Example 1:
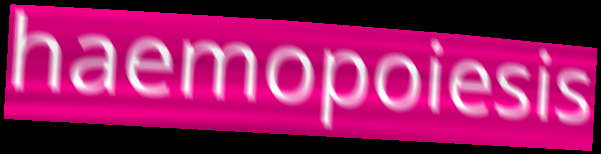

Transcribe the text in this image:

haemopoiesis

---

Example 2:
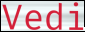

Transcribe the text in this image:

Vedi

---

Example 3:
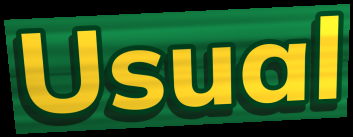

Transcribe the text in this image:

Usual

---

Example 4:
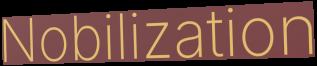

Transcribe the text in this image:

Nobilization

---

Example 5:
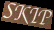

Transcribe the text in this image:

SKIP